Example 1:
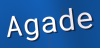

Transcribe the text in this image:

Agade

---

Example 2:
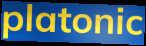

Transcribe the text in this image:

platonic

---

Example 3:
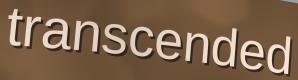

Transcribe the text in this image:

transcended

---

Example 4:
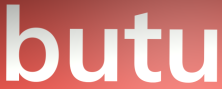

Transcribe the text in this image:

butu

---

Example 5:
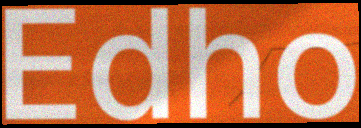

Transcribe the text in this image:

Edho